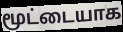
மூட்டையாக